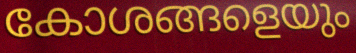
കോശങ്ങളെയും